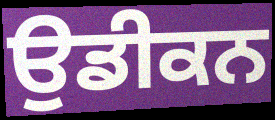
ਉਡੀਕਨ